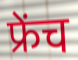
फ्रेंच